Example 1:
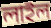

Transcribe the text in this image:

লাইল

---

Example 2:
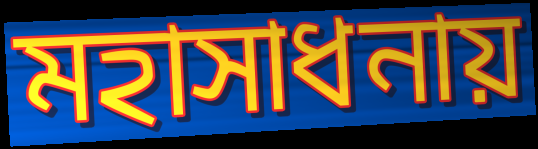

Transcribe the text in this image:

মহাসাধনায়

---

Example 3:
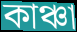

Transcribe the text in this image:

কাঞ্চা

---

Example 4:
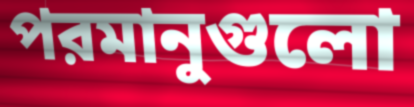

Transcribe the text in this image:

পরমানুগুলো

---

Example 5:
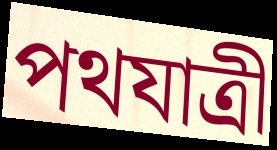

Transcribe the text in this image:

পথযাত্রী